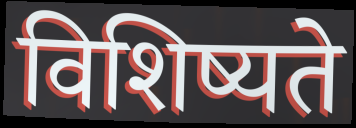
विशिष्यते